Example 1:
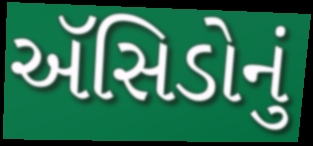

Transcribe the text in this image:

ઍસિડોનું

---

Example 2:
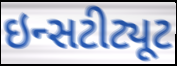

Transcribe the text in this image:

ઇન્સટીટ્યૂટ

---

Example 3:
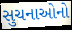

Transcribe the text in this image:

સુચનાઓનો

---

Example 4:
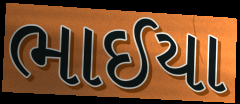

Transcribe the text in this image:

ભાઈયા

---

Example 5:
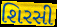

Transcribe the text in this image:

શિરસી